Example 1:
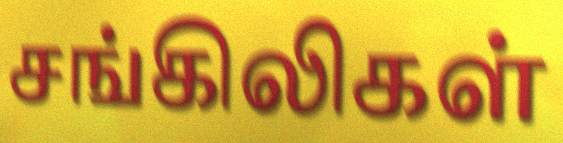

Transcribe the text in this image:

சங்கிலிகள்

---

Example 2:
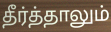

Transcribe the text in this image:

தீர்த்தாலும்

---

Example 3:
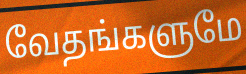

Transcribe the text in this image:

வேதங்களுமே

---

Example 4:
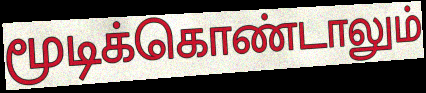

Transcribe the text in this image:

மூடிக்கொண்டாலும்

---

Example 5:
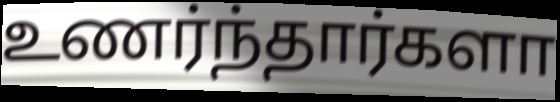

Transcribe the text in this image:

உணர்ந்தார்களா